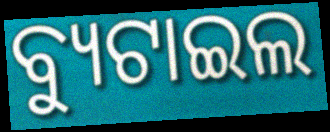
ବ୍ୟୁଟାଇଲ